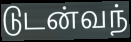
டுடன்வந்